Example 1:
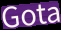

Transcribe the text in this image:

Gota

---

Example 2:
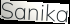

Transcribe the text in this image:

Sanika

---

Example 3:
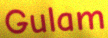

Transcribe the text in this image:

Gulam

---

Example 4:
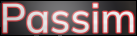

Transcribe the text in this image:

Passim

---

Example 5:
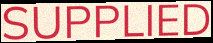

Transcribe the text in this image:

SUPPLIED